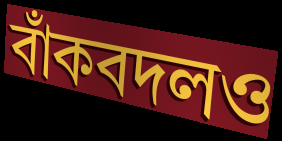
বাঁকবদলও